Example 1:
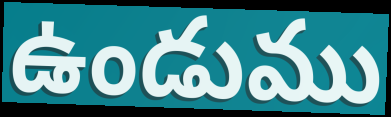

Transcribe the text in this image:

ఉండుము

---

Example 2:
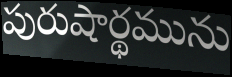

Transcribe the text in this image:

పురుషార్థమును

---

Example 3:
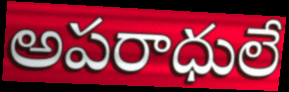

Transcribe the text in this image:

అపరాధులే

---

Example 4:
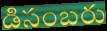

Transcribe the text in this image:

డిసంబరు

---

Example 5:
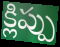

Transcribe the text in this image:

క్లిప్పు